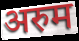
अरुम